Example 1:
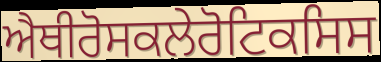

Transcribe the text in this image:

ਐਥੀਰੋਸਕਲੇਰੋਟਿਕਸਿਸ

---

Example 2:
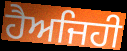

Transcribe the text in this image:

ਹੈਅਜਿਹੀ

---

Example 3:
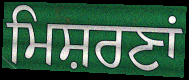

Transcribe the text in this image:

ਮਿਸ਼ਰਣਾਂ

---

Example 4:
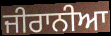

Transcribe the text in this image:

ਜੀਰਾਨੀਆ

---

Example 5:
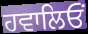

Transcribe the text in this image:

ਹਵਾਲਿਓਂ